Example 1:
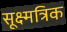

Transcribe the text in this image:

सूक्ष्मत्रिक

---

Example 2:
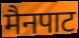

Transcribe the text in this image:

मैनपाट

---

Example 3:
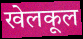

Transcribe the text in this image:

खेलकूल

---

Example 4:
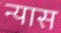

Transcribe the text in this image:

न्‍यास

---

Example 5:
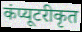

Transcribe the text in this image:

कंप्यूटरीकृत